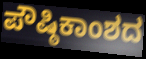
ಪೌಷ್ಠಿಕಾಂಶದ